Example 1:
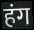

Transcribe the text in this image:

हंग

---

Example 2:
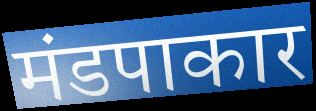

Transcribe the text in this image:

मंडपाकार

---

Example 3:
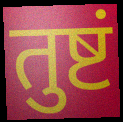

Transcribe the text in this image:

तुष्टं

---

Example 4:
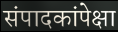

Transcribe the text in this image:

संपादकांपेक्षा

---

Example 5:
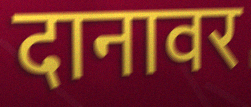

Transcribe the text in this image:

दानावर